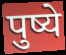
पुष्ये